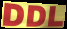
DDL